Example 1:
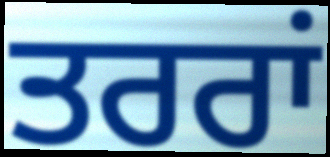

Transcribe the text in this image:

ਤਰਰਾਂ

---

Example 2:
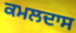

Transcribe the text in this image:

ਕਮਲਦਾਸ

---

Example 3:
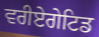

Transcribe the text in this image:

ਵਰੀਏਗੇਟਿਡ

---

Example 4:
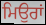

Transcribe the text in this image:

ਮਿਉਰਾਂ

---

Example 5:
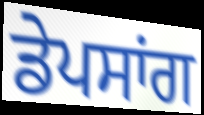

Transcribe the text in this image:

ਡੇਪਸਾਂਗ